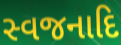
સ્વજનાદિ